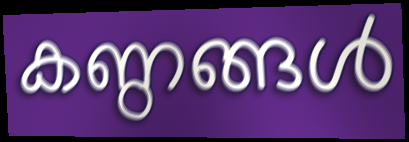
കണ്ഠങ്ങൾ